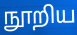
நூறிய